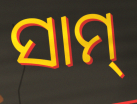
ସାମ୍